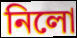
নিলো